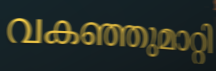
വകഞ്ഞുമാറ്റി